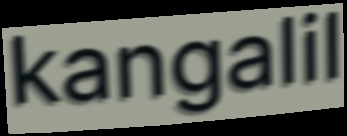
kangalil